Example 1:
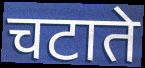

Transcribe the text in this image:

चटाते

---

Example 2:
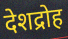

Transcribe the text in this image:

देशद्रोह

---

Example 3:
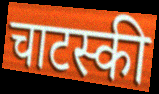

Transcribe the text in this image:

चाटस्की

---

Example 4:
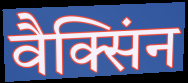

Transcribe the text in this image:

वैक्सिंन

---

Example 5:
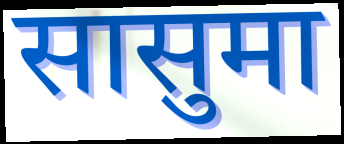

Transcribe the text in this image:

सासुमा